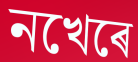
নখেৰে